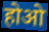
होओ